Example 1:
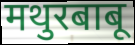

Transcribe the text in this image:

मथुरबाबू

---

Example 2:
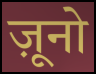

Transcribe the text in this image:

ज़ूनो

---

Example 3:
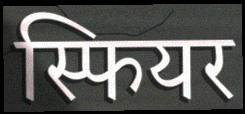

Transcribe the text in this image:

स्फियर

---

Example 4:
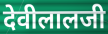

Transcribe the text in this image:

देवीलालजी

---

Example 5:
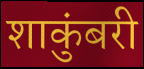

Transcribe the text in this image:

शाकुंबरी